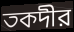
তকদীর